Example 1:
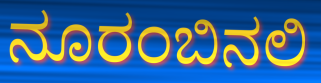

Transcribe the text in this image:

ನೂರಂಬಿನಲಿ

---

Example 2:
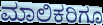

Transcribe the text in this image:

ಮಾಲಿಕರಿಗೂ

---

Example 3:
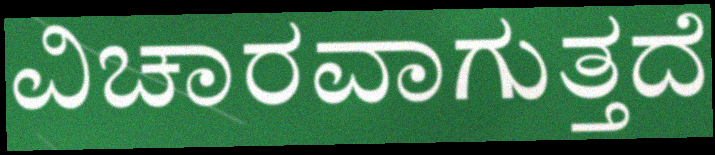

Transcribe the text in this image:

ವಿಚಾರವಾಗುತ್ತದೆ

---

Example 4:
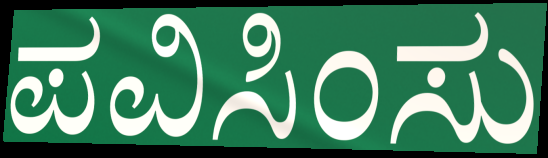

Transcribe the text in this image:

ಪವಿಸಿಂಸು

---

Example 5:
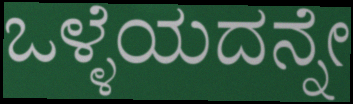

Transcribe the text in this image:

ಒಳ್ಳೆಯದನ್ನೇ